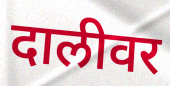
दालीवर